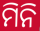
ମିନି